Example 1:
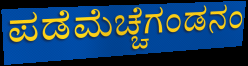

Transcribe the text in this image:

ಪಡೆಮೆಚ್ಚೆಗಂಡನಂ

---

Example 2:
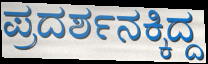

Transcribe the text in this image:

ಪ್ರದರ್ಶನಕ್ಕಿದ್ದ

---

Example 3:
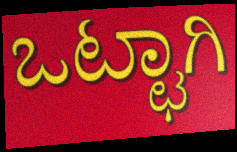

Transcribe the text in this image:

ಒಟ್ಟಾಗಿ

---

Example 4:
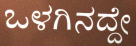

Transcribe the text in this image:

ಒಳಗಿನದ್ದೇ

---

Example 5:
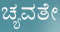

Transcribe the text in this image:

ಚ್ಯವತೇ